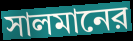
সালমানের